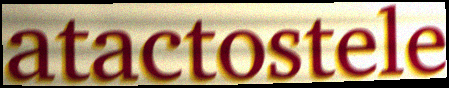
atactostele